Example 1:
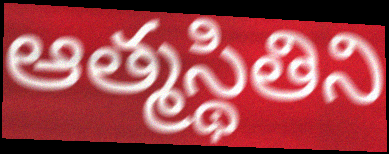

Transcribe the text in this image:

ఆత్మస్థితిని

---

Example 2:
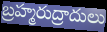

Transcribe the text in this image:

బ్రహ్మరుద్రాదులు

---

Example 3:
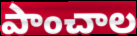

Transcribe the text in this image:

పాంచాల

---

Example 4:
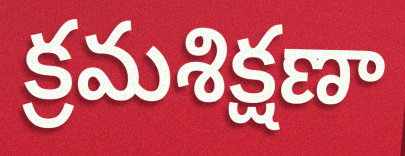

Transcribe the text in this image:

క్రమశిక్షణా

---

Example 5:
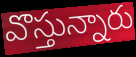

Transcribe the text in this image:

వొస్తున్నారు